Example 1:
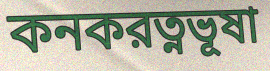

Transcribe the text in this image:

কনকরত্নভূষা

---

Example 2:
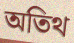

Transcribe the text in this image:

অতিথ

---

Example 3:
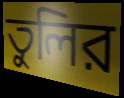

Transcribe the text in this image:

তুলির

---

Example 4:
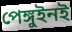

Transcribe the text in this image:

পেঙ্গুইনই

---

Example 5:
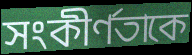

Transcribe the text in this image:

সংকীর্ণতাকে